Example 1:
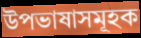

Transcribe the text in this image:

উপভাষাসমূহক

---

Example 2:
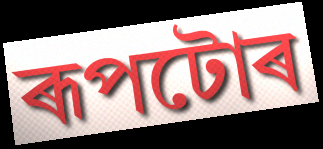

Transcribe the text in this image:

ৰূপটোৰ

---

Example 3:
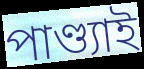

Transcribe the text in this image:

পাণ্ড্যাই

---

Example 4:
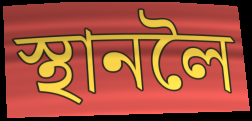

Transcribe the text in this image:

স্থানলৈ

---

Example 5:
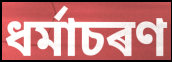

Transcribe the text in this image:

ধৰ্মাচৰণ